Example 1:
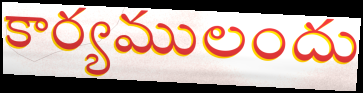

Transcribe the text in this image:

కార్యములందు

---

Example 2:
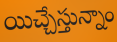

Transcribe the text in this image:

యిచ్చేస్తున్నాం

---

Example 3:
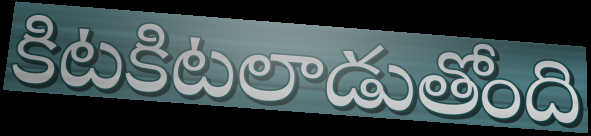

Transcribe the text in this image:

కిటకిటలాడుతోంది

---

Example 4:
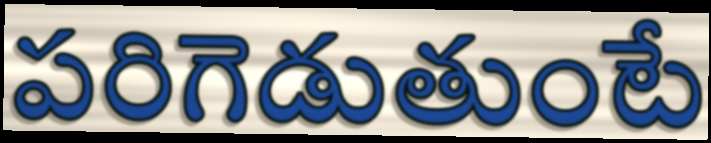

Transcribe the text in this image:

పరిగెడుతుంటే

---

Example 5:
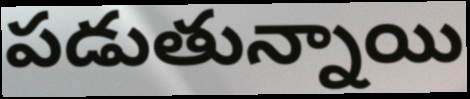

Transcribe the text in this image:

పడుతున్నాయి